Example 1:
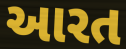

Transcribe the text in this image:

આરત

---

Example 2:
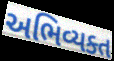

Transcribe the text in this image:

અભિવ્યક્ત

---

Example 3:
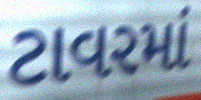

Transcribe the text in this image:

ટાવરમાં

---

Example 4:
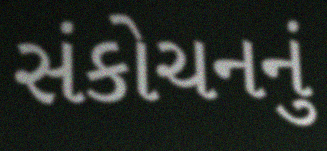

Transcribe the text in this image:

સંકોચનનું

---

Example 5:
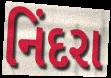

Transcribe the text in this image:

નિંદરા